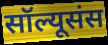
सॉल्यूसंस